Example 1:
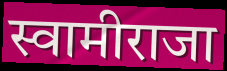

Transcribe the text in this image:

स्वामीराजा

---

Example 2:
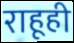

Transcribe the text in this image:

राहूही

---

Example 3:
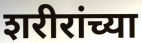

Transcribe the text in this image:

शरीरांच्या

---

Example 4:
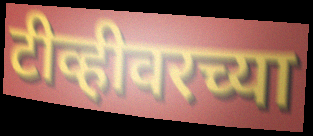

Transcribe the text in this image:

टीव्हीवरच्या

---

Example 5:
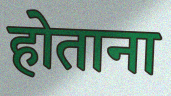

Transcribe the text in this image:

होताना